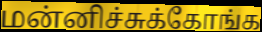
மன்னிச்சுக்கோங்க